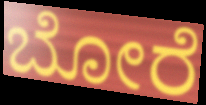
ಬೋರೆ